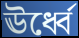
ঊর্ধ্বে